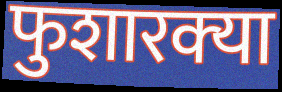
फुशारक्‍या